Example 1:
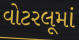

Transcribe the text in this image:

વોટરલૂમાં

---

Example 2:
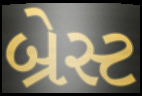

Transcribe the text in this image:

બ્રેસ્ટ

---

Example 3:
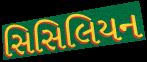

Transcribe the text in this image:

સિસિલિયન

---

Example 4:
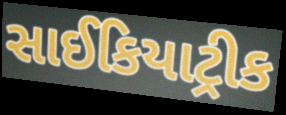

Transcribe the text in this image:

સાઈકિયાટ્રીક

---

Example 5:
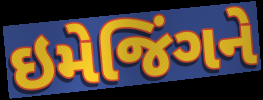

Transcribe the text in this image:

ઇમેજિંગને